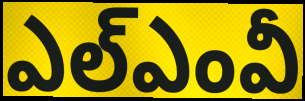
ఎల్ఎంవీ